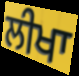
ਲੀਖਾ